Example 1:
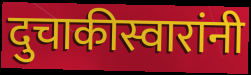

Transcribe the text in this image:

दुचाकीस्वारांनी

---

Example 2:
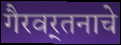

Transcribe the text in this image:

गैरवर्तनाचे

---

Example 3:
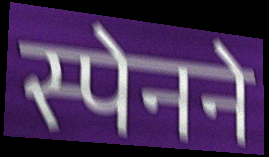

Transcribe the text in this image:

स्पेनने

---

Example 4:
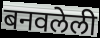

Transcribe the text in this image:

बनवलेली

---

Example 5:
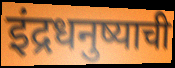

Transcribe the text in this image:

इंद्रधनुष्याची